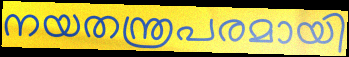
നയതന്ത്രപരമായി